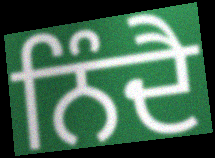
ਨਿੰਦੈ